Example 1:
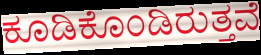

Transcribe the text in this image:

ಕೂಡಿಕೊಂಡಿರುತ್ತವೆ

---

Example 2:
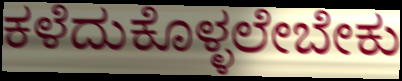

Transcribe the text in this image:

ಕಳೆದುಕೊಳ್ಳಲೇಬೇಕು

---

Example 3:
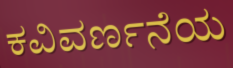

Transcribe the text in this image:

ಕವಿವರ್ಣನೆಯ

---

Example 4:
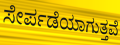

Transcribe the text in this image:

ಸೇರ್ಪಡೆಯಾಗುತ್ತವೆ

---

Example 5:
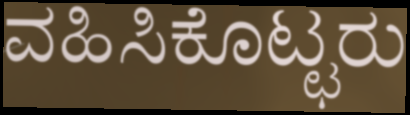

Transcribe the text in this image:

ವಹಿಸಿಕೊಟ್ಟರು